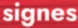
signes